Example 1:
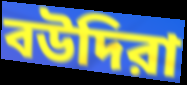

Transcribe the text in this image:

বউদিরা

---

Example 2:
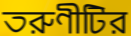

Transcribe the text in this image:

তরুণীটির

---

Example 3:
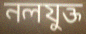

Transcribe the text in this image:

নলযুক্ত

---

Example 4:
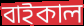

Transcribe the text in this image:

বাইকাল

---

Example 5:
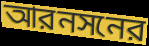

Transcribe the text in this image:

আরনসনের